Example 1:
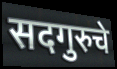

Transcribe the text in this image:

सदगुरुचे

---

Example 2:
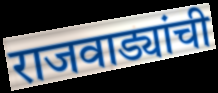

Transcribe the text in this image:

राजवाड्यांची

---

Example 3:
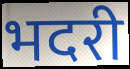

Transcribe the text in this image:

भदरी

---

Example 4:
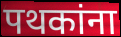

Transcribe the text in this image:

पथकांना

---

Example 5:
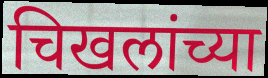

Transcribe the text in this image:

चिखलांच्या